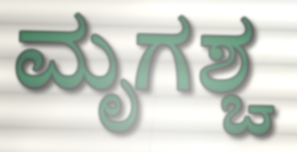
ಮೃಗಶ್ಚ